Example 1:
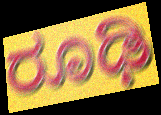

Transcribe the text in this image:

ರೂಢಿ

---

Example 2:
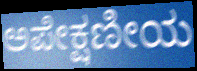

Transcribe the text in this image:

ಅಪೇಕ್ಷಣೀಯ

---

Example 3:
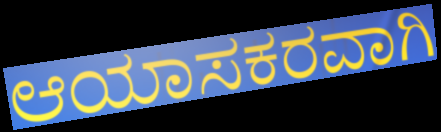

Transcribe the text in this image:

ಆಯಾಸಕರವಾಗಿ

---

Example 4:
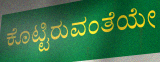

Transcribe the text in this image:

ಕೊಟ್ಟಿರುವಂತೆಯೇ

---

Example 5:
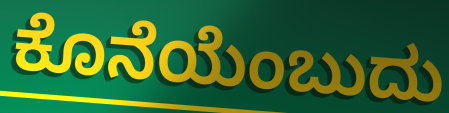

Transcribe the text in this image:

ಕೊನೆಯೆಂಬುದು